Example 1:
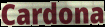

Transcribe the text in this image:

Cardona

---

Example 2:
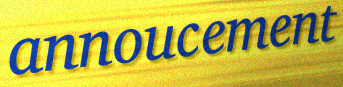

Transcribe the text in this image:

annoucement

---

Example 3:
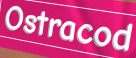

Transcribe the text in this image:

Ostracod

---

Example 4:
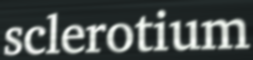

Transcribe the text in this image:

sclerotium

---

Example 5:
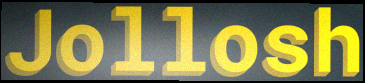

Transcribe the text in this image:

Jollosh